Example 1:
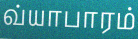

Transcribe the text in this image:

வ்யாபாரம்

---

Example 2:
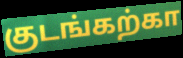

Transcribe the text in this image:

குடங்கற்கா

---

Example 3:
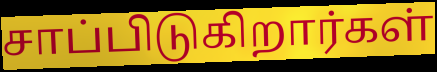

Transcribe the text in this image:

சாப்பிடுகிறார்கள்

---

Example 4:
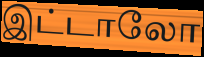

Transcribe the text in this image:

இட்டாலோ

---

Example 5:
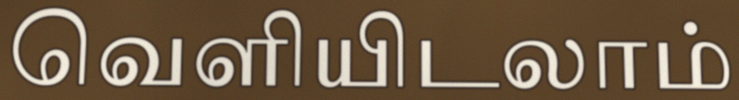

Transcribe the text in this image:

வெளியிடலாம்